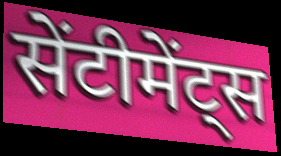
सेंटीमेंट्स